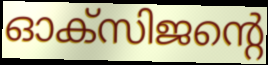
ഓക്സിജന്റെ